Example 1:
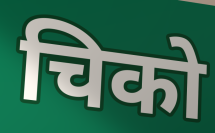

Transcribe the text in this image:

चिको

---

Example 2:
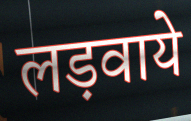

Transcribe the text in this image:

लड़वाये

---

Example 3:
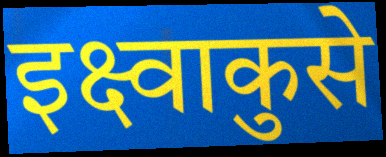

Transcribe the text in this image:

इक्ष्वाकुसे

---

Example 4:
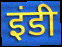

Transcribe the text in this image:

इंडी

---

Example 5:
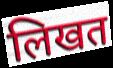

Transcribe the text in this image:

लिखत